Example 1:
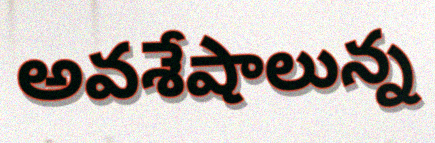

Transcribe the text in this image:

అవశేషాలున్న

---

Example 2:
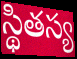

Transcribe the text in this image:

స్థితస్య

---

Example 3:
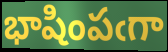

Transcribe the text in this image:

భాషింపఁగా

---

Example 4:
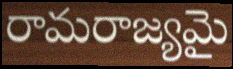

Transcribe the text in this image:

రామరాజ్యమై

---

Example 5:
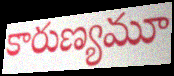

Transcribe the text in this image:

కారుణ్యమూ